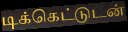
டிக்கெட்டுடன்